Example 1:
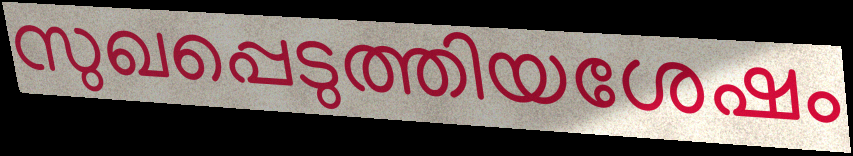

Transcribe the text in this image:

സുഖപ്പെടുത്തിയശേഷം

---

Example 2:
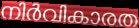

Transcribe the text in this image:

നിർവികാരത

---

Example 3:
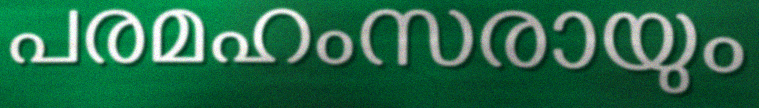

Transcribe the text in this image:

പരമഹംസരായും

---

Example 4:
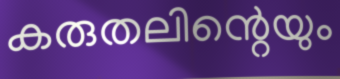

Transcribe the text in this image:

കരുതലിന്റെയും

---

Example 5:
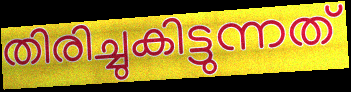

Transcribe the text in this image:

തിരിച്ചുകിട്ടുന്നത്